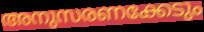
അനുസരണക്കേടും